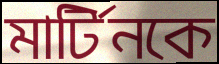
মার্টিনকে